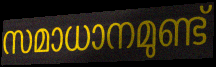
സമാധാനമുണ്ട്